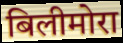
बिलीमोरा